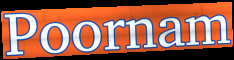
Poornam